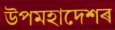
উপমহাদেশৰ